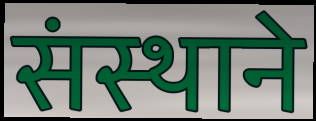
संस्थाने